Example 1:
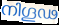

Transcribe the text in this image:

നിഗൂഢ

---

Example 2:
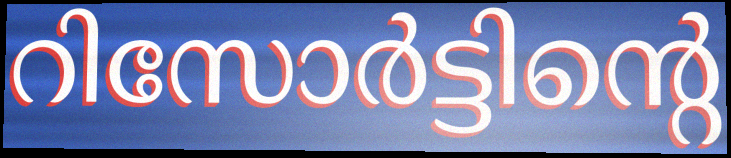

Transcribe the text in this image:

റിസോർട്ടിന്റെ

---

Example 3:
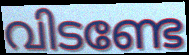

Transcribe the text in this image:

വിടണ്ടേ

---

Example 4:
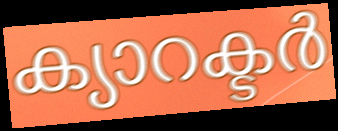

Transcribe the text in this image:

ക്യാറക്ടർ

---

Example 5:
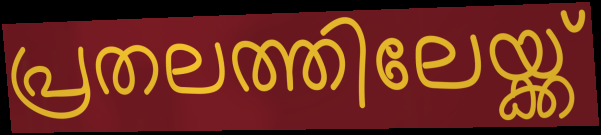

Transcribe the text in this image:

പ്രതലത്തിലേയ്ക്ക്